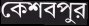
কেশবপুর